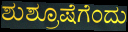
ಶುಶ್ರೂಷೆಗೆಂದು